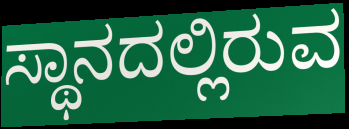
ಸ್ಥಾನದಲ್ಲಿರುವ